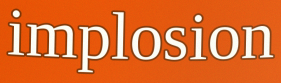
implosion